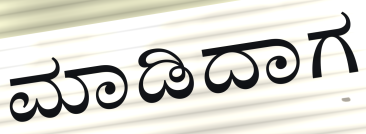
ಮಾಡಿದಾಗ